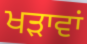
ਖੜਾਵਾਂ